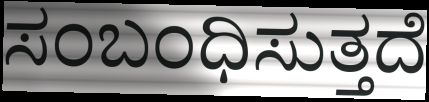
ಸಂಬಂಧಿಸುತ್ತದೆ